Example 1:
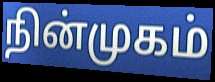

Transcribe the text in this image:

நின்முகம்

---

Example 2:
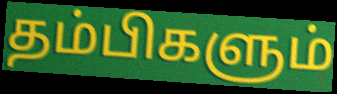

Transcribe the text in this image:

தம்பிகளும்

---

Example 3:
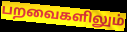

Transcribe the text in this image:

பறவைகளிலும்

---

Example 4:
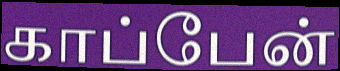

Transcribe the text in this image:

காப்பேன்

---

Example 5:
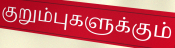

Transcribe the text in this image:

குறும்புகளுக்கும்